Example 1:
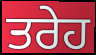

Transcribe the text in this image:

ਤਰੇਹ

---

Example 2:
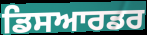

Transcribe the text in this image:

ਡਿਸਆਰਡਰ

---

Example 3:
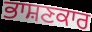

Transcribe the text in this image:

ਭਾਸ਼ਣਕਾਰ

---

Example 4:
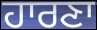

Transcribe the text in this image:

ਹਾਰਣਾ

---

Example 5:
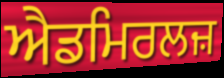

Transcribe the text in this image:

ਐਡਮਿਰਲਜ਼